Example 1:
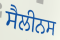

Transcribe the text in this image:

ਸੈਲੀਨਸ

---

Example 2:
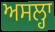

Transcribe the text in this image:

ਅਸਲ੍ਹਾ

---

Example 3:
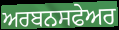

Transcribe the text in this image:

ਅਰਬਨਸਫੇਅਰ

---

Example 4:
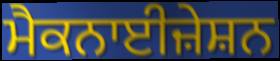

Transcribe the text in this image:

ਮੈਕਨਾਈਜ਼ੇਸ਼ਨ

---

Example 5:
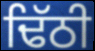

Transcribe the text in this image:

ਢਿੱਠੀ